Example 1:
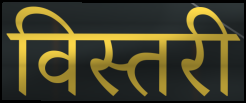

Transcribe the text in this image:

विस्तरी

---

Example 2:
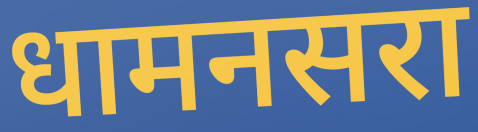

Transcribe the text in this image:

धामनसरा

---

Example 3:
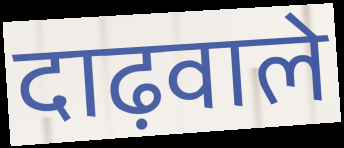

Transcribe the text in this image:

दाढ़वाले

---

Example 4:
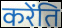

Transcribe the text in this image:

करेंति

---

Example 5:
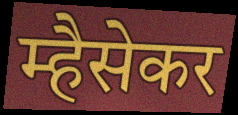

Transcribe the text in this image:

म्हैसेकर